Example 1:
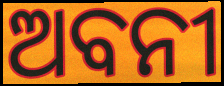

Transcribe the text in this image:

ଅବନୀ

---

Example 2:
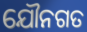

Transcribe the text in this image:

ଯୌନଗତ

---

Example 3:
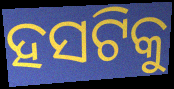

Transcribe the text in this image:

ହସଟିକୁ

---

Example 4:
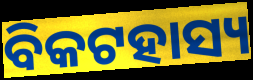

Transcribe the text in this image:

ବିକଟହାସ୍ୟ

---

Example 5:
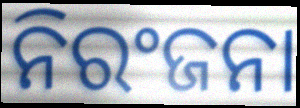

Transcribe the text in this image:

ନିରଂଜନା